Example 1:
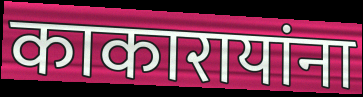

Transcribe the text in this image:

काकारायांना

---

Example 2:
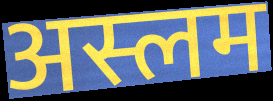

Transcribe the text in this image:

अस्लम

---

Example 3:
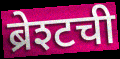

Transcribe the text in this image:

ब्रेश्टची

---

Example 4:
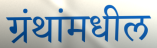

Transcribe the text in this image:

ग्रंथांमधील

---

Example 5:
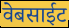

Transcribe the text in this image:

वेबसाईट